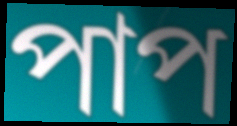
পাপ